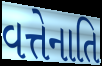
વત્તેનાતિ